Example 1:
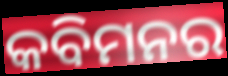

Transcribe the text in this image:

କବିମନର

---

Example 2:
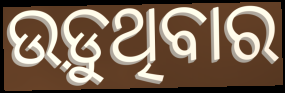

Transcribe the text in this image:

ଉଡ଼ୁଥିବାର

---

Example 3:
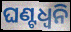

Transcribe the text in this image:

ଘଣ୍ଟଧ୍ୱନି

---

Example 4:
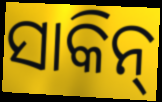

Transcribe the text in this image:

ସାକିନ୍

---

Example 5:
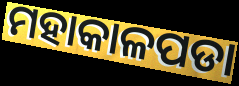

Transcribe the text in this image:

ମହାକାଳପଡା